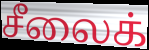
சீலைக்